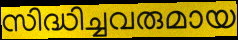
സിദ്ധിച്ചവരുമായ